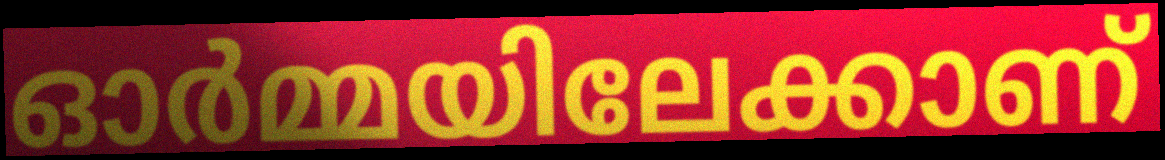
ഓർമ്മയിലേക്കാണ്